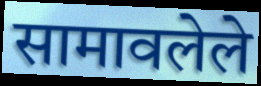
सामावलेले